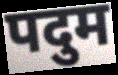
पदुम